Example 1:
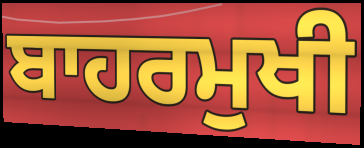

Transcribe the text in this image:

ਬਾਹਰਮੁਖੀ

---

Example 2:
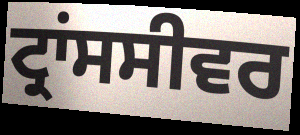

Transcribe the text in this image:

ਟ੍ਰਾਂਸਸੀਵਰ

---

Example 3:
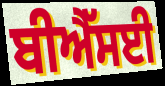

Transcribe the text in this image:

ਬੀਐੱਸਈ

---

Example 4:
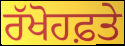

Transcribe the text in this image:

ਰੱਖੋਹਫ਼ਤੇ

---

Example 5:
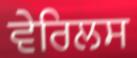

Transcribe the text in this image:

ਵੇਰਿਲਸ